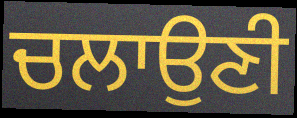
ਚਲਾਉਣੀ